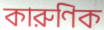
কারুণিক